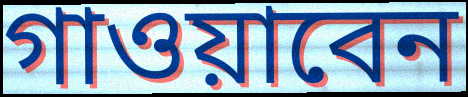
গাওয়াবেন